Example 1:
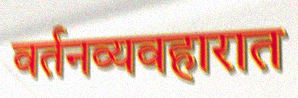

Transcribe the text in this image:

वर्तनव्यवहारात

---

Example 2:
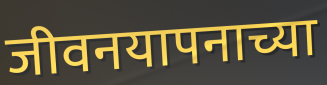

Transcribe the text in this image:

जीवनयापनाच्या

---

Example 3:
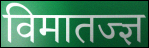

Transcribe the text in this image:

विमातज्ज्ञ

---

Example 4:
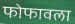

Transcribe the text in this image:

फोफावला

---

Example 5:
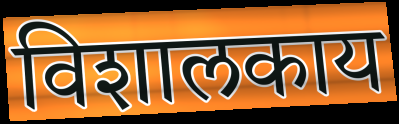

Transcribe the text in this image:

विशालकाय